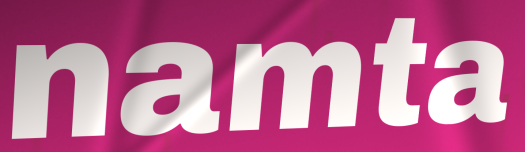
namta